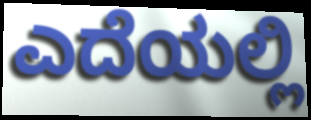
ಎದೆಯಲ್ಲಿ